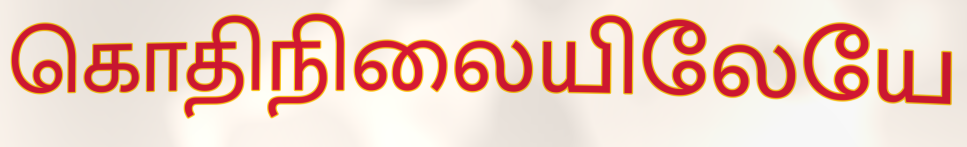
கொதிநிலையிலேயே